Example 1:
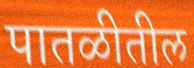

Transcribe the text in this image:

पातळीतील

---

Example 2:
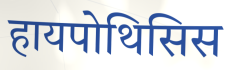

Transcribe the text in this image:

हायपोथिसिस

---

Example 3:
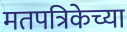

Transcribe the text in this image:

मतपत्रिकेच्या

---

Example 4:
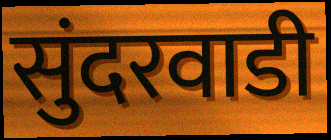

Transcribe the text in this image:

सुंदरवाडी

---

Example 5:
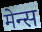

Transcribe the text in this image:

मेन्स